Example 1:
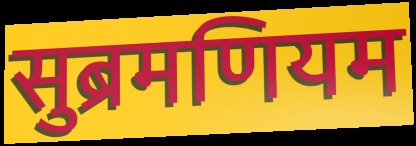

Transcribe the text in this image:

सुब्रमणियम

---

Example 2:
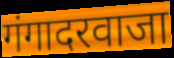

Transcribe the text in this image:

गंगादरवाजा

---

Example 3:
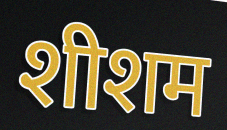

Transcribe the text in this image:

शीशम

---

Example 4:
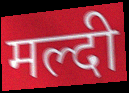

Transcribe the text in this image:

मल्दी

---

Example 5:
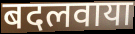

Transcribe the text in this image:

बदलवाया